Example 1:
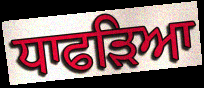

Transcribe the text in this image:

ਧਾਫੜਿਆ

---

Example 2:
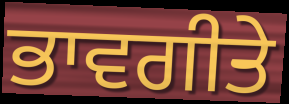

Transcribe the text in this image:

ਭਾਵਗੀਤੇ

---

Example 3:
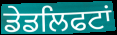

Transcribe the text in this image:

ਡੇਡਲਿਫਟਾਂ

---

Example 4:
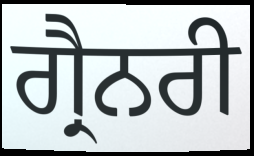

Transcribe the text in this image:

ਗ੍ਰੈਨਰੀ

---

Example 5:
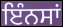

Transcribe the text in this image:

ਇੰਨਸਾਂ